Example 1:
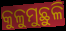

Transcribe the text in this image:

କୁଳୁମୁଛୁଳି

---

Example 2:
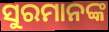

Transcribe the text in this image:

ସୁରମାନଙ୍କ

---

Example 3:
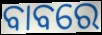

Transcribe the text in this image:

ବାବରେ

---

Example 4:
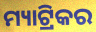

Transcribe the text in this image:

ମ୍ୟାଟ୍ରିକର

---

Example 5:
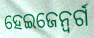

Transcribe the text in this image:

ହେଇଜେନ୍ବର୍ଗ